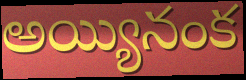
అయ్యినంక